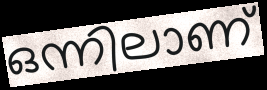
ഒന്നിലാണ്